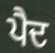
ਪੈਦ